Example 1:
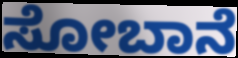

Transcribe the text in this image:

ಸೋಬಾನೆ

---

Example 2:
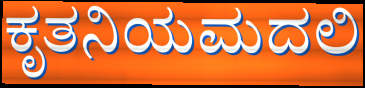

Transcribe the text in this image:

ಕೃತನಿಯಮದಲಿ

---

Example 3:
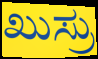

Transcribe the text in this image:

ಖುಸ್ರು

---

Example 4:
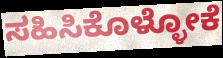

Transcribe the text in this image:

ಸಹಿಸಿಕೊಳ್ಳೋಕೆ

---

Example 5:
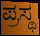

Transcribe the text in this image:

ಪ್ರಸ್ಥ